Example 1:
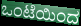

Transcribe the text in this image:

ಒಂಟೆಯಿಂದ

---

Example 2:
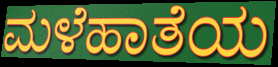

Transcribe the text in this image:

ಮಳೆಹಾತೆಯ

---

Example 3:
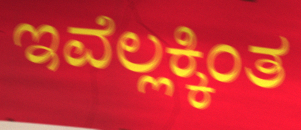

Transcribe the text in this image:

ಇವೆಲ್ಲಕ್ಕಿಂತ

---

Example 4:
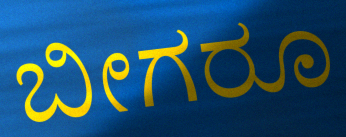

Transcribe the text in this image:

ಬೀಗರೂ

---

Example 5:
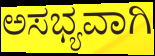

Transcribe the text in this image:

ಅಸಭ್ಯವಾಗಿ